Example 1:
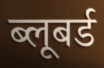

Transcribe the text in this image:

ब्लूबर्ड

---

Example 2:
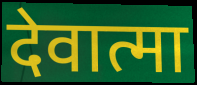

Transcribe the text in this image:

देवात्मा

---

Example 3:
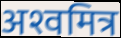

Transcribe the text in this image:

अश्वमित्र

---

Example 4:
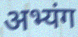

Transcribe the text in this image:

अभ्यंग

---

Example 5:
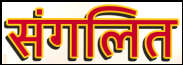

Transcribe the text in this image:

संगलित